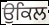
ਉਕਿਲ